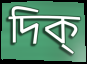
দিক্